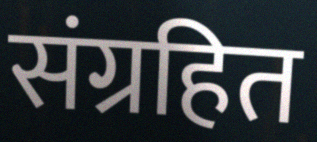
संग्रहित